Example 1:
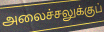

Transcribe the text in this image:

அலைச்சலுக்குப்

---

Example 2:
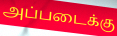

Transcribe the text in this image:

அப்படைக்கு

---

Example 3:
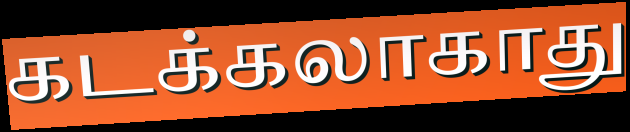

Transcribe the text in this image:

கடக்கலாகாது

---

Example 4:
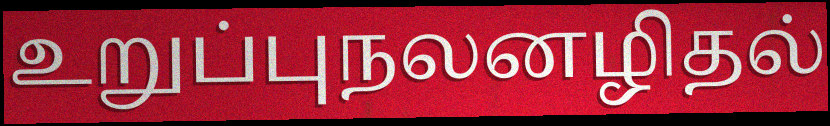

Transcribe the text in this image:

உறுப்புநலனழிதல்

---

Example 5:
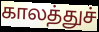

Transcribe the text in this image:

காலத்துச்